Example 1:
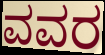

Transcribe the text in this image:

ವವರ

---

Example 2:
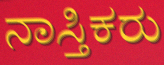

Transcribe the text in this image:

ನಾಸ್ತಿಕರು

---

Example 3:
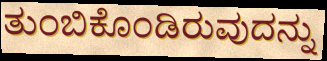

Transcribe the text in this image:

ತುಂಬಿಕೊಂಡಿರುವುದನ್ನು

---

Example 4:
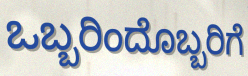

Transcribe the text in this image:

ಒಬ್ಬರಿಂದೊಬ್ಬರಿಗೆ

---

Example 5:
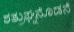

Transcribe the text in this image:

ಶತ್ರುಘ್ನನೊಡನೆ